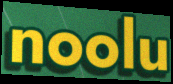
noolu